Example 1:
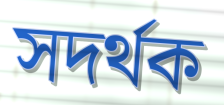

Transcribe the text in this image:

সদৰ্থক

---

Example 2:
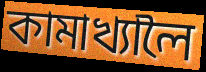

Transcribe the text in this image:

কামাখ্যালৈ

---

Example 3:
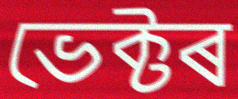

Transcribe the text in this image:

ভেক্টৰ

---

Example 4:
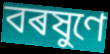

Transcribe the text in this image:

বৰষুণে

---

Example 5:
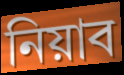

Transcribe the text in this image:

নিয়াব